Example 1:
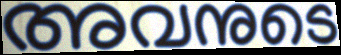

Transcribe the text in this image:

അവനുടെ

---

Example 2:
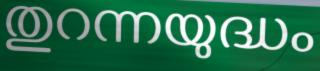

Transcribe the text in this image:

തുറന്നയുദ്ധം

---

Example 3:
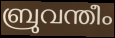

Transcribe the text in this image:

ബ്രുവന്തീം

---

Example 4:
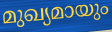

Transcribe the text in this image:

മുഖ്യമായും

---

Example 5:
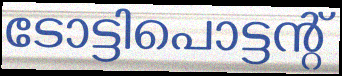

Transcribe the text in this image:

ടോട്ടിപൊട്ടന്റ്